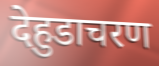
देहुडाचरण